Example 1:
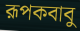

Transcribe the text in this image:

রূপকবাবু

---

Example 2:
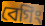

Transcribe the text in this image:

বেগিং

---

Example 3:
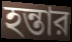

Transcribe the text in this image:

হন্তার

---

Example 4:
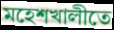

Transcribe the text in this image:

মহেশখালীতে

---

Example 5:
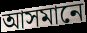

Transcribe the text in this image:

আসমানে